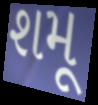
શમૂ